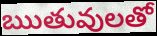
ఋతువులతో